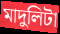
মাদুলিটা